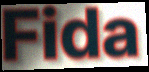
Fida